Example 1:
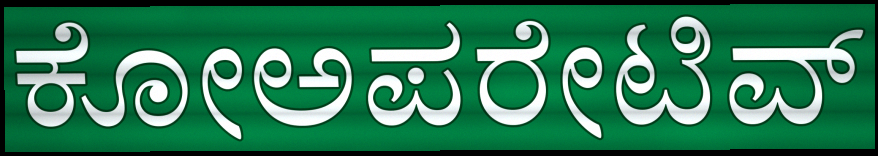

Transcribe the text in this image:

ಕೋಅಪರೇಟಿವ್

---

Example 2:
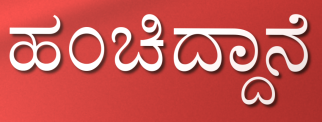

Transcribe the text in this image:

ಹಂಚಿದ್ದಾನೆ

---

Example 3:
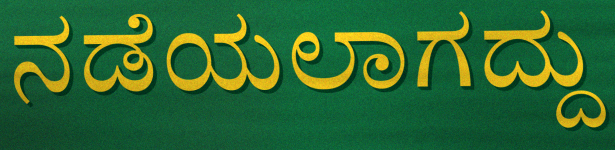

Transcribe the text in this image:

ನಡೆಯಲಾಗದ್ದು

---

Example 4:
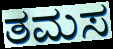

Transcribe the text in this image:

ತಮಸ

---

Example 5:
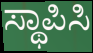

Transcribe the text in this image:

ಸ್ಥಾಪಿಸಿ